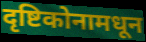
दृष्टिकोनामधून